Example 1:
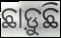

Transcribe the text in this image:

ଛାଡ଼ୁଛି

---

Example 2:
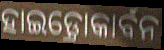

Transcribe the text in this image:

ହାଇଡ଼୍ରୋକାର୍ବନ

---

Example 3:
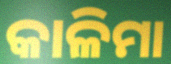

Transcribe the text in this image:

କାଳିମା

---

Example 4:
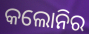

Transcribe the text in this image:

କଲୋନିର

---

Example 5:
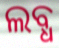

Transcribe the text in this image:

ଲବ୍ଧ